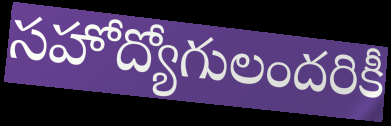
సహోద్యోగులందరికీ